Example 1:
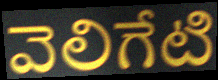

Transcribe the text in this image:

వెలిగేటి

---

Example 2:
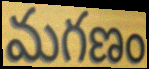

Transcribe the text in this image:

మగణం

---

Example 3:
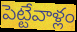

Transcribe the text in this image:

పెట్టేవాళ్లం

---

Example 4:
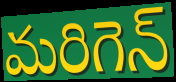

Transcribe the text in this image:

మరిగెన్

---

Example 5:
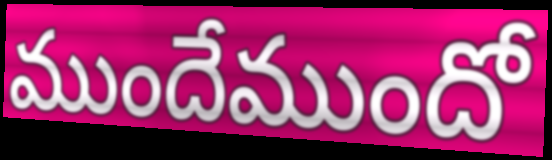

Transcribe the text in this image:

ముందేముందో